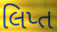
લિપ્ત